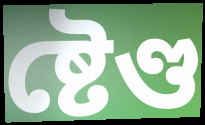
ষ্টেণ্ড